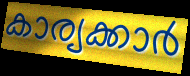
കാര്യക്കാർ